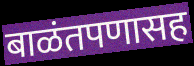
बाळंतपणासह